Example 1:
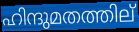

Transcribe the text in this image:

ഹിന്ദുമതത്തില്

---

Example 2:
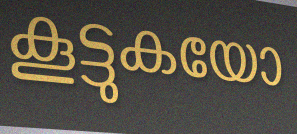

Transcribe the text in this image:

കൂട്ടുകയോ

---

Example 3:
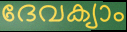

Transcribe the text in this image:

ദേവക്യാം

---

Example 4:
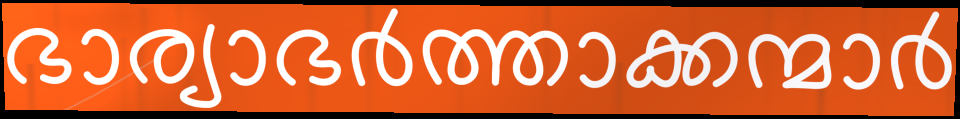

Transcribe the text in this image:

ഭാര്യാഭർത്താക്കന്മാർ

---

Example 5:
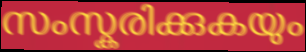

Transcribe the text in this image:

സംസ്കരിക്കുകയും